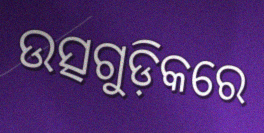
ଉତ୍ସଗୁଡ଼ିକରେ